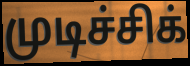
முடிச்சிக்